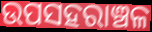
ଉପସହରାଞ୍ଚଳ